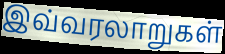
இவ்வரலாறுகள்